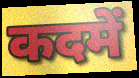
कदमें